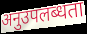
अनुउपलब्धता